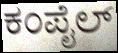
ಕಂಪೈಲ್